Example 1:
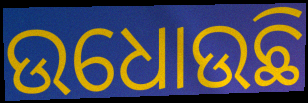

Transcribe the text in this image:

ଉଧୋଉଛି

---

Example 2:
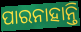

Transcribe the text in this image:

ପାରନାହାନ୍ତି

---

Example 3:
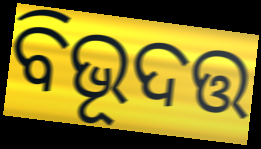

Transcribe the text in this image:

ବିଭୂଦତ୍ତ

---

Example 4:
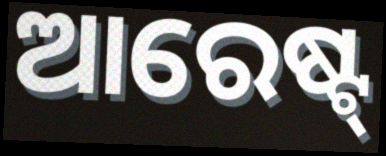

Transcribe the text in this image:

ଆରେଷ୍ଟ୍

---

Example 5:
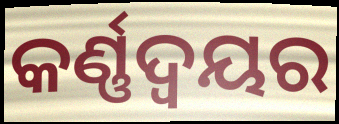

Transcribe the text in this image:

କର୍ଣ୍ଣଦ୍ୱୟର